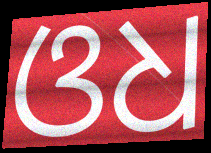
ଓଧ